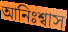
আনিঃশ্বাস